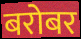
बरोबर